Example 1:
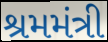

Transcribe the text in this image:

શ્રમમંત્રી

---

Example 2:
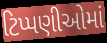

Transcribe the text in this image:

ટિપ્પણીઓમાં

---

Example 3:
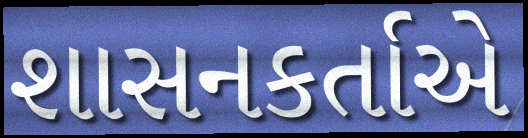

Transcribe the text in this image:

શાસનકર્તાએ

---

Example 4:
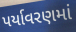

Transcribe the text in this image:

પર્યાવરણમાં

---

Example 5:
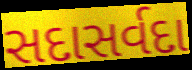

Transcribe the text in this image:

સદાસર્વદા